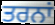
ਤਰਨਾਂ